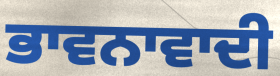
ਭਾਵਨਾਵਾਦੀ